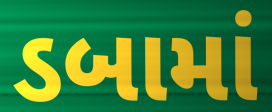
ડબામાં